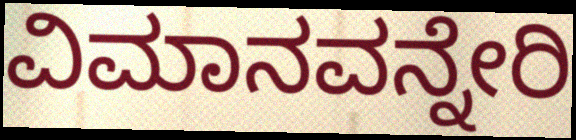
ವಿಮಾನವನ್ನೇರಿ